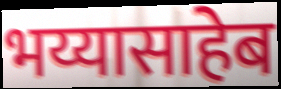
भय्यासाहेब